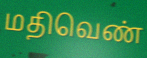
மதிவெண்